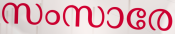
സംസാരേ